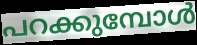
പറക്കുമ്പോൾ